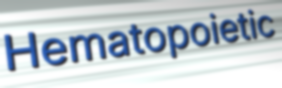
Hematopoietic